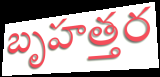
బృహత్తర